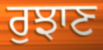
ਰੁਝਾਣ